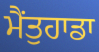
ਮੈਂਤੁਹਾਡਾ